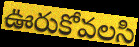
ఊరుకోవలసి